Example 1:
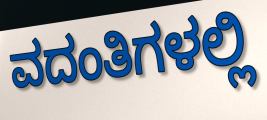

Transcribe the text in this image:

ವದಂತಿಗಳಲ್ಲಿ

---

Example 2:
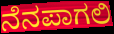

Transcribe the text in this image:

ನೆನಪಾಗಲಿ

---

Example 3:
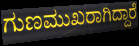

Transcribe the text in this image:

ಗುಣಮುಖರಾಗಿದ್ದಾರೆ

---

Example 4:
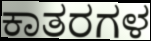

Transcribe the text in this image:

ಕಾತರಗಳ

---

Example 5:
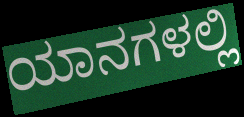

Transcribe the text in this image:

ಯಾನಗಳಲ್ಲಿ